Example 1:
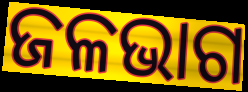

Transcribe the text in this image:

ଜଳଭାଗ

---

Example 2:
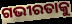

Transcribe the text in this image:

ଗଭୀରତାକୁ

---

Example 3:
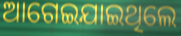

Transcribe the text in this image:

ଆଗେଇଯାଇଥିଲେ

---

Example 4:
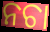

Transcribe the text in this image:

ନଚା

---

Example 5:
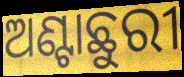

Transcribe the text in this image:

ଅଣ୍ଟାଛୁରୀ